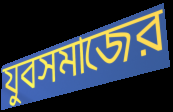
যুবসমাজের